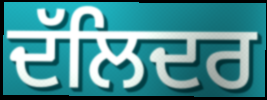
ਦੱਲਿਦਰ